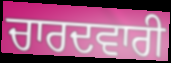
ਚਾਰਦਵਾਰੀ